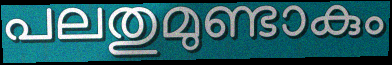
പലതുമുണ്ടാകും